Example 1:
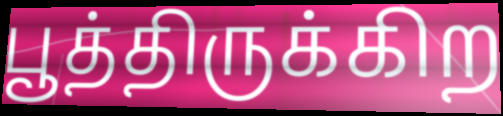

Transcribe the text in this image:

பூத்திருக்கிற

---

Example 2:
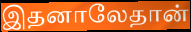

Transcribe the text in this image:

இதனாலேதான்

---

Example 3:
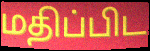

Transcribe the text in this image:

மதிப்பிட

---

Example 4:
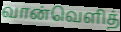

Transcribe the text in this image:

வான்வெளித்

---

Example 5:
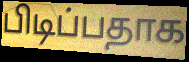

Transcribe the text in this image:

பிடிப்பதாக